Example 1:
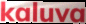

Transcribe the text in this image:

kaluva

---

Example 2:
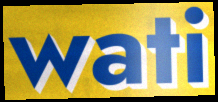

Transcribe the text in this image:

wati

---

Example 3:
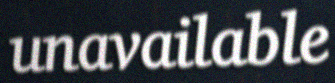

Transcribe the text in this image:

unavailable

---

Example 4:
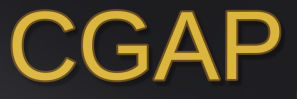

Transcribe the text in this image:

CGAP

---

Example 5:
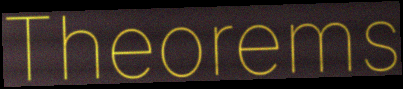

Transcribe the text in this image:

Theorems